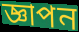
জ্ঞাপন